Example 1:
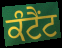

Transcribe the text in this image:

ਕੰਟੈਂਟ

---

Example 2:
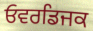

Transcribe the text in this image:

ਓਵਰਡਿਜਕ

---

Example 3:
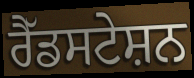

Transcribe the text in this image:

ਰੈੱਡਸਟੇਸ਼ਨ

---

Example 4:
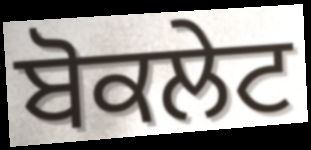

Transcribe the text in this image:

ਬੋਕਲੇਟ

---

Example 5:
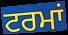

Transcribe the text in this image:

ਟਰਮਾਂ